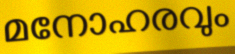
മനോഹരവും